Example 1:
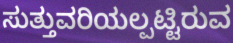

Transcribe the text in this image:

ಸುತ್ತುವರಿಯಲ್ಪಟ್ಟಿರುವ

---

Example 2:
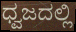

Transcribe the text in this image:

ಧ್ವಜದಲ್ಲಿ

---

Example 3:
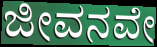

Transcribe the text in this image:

ಜೀವನವೇ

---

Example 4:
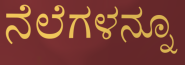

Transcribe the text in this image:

ನೆಲೆಗಳನ್ನೂ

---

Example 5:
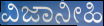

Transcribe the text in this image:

ವಿಜಾನೀಹಿ